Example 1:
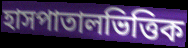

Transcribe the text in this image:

হাসপাতালভিত্তিক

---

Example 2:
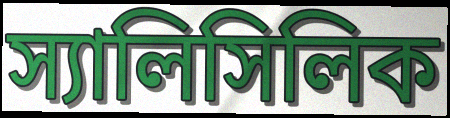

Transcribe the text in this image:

স্যালিসিলিক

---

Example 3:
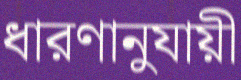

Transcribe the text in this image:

ধারণানুযায়ী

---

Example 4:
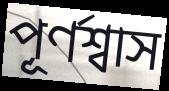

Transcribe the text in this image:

পূর্ণশ্বাস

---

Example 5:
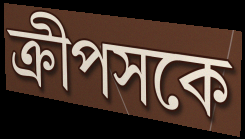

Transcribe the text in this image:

ক্রীপসকে